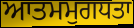
ਆਤਮਮੁਗਧਤਾ